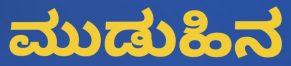
ಮುಡುಹಿನ